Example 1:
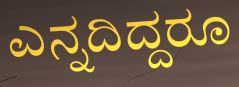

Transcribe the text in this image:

ಎನ್ನದಿದ್ದರೂ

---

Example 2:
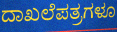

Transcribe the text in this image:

ದಾಖಲೆಪತ್ರಗಳೂ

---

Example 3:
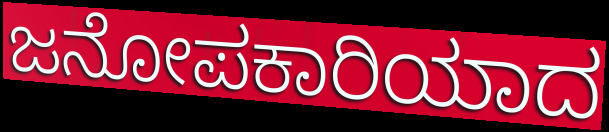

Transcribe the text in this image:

ಜನೋಪಕಾರಿಯಾದ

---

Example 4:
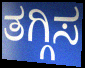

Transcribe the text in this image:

ತಗ್ಗಿಸ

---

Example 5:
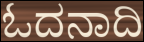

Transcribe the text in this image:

ಓದನಾದಿ